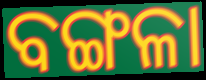
ବଙ୍ଗଳା